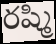
రష్మి